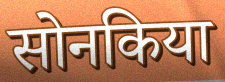
सोनकिया